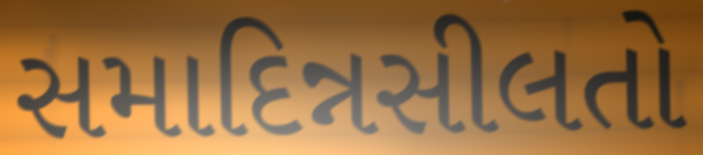
સમાદિન્નસીલતો